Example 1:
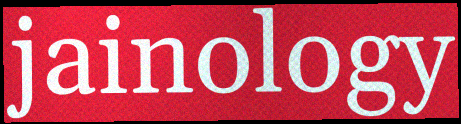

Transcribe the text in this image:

jainology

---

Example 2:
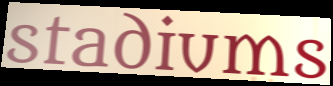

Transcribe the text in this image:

stadiums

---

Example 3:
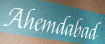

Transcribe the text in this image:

Ahemdabad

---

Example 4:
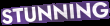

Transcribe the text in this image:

STUNNING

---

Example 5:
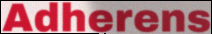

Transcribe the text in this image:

Adherens